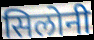
सिलोनी